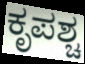
ಕೃಪಶ್ಚ